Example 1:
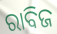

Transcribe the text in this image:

ରାବିଜ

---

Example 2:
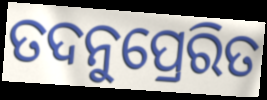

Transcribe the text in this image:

ତଦନୁପ୍ରେରିତ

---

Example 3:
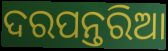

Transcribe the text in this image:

ଦରପନ୍ତରିଆ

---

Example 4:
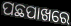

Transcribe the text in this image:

ପଛପାଖରେ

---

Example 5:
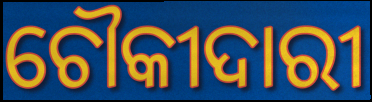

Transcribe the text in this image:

ଚୌକୀଦାରୀ